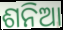
ଶନିଆ